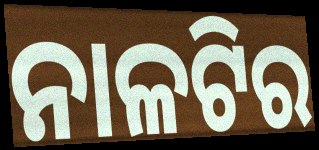
ନାଳଟିର